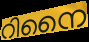
റിനൈ